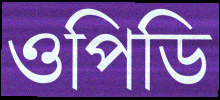
ওপিডি